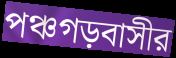
পঞ্চগড়বাসীর